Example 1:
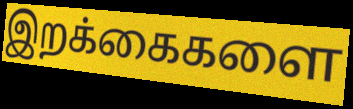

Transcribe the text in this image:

இறக்கைகளை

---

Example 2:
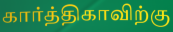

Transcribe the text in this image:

கார்த்திகாவிற்கு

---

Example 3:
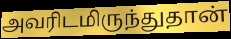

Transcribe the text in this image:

அவரிடமிருந்துதான்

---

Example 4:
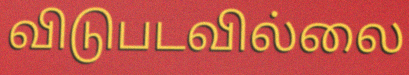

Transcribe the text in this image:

விடுபடவில்லை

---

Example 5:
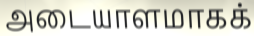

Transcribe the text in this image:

அடையாளமாகக்